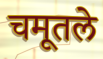
चमूतले